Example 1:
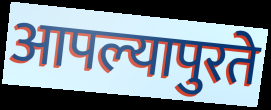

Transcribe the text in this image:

आपल्यापुरते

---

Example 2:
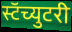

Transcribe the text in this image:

स्टॅच्युटरी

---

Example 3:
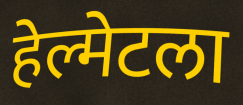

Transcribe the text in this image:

हेल्मेटला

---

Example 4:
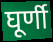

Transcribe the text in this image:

घूर्णी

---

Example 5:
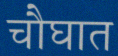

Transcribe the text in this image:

चौघात